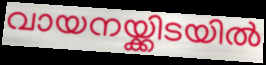
വായനയ്ക്കിടയിൽ